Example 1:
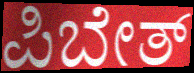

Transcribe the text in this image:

ಪಿಬೇತ್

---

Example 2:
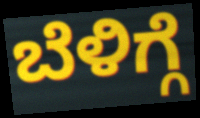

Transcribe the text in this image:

ಬೆಳಿಗ್ಗೆ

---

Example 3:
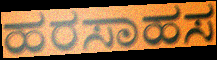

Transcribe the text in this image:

ಹರಸಾಹಸ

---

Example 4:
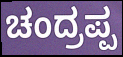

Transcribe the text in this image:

ಚಂದ್ರಪ್ಪ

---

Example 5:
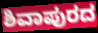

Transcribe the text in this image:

ಶಿವಾಪುರದ